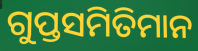
ଗୁପ୍ତସମିତିମାନ